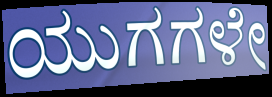
ಯುಗಗಳೇ